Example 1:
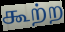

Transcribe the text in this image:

கூற்ற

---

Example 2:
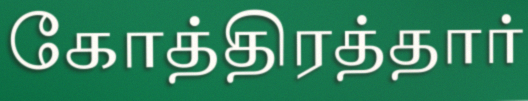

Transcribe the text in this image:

கோத்திரத்தார்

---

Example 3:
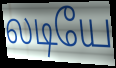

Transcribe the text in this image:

லடியே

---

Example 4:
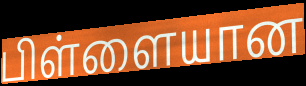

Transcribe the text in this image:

பிள்ளையான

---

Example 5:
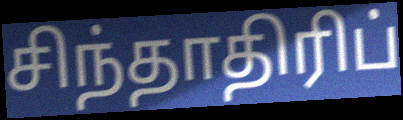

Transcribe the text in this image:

சிந்தாதிரிப்